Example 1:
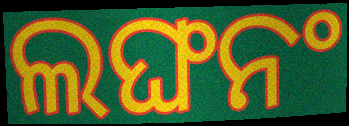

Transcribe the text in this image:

ଲଙ୍ଘନଂ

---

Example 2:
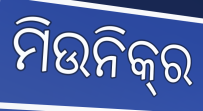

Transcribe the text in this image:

ମିଉନିକ୍‌ର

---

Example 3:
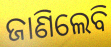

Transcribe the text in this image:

ଜାଣିଲେବି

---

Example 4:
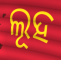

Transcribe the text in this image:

ଲୂହ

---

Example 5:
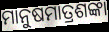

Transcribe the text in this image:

ମାନୁଷମାତ୍ରଶଙ୍କା